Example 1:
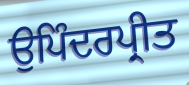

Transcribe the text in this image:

ਉਪਿੰਦਰਪ੍ਰੀਤ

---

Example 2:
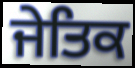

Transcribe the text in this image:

ਜੇਤਿਕ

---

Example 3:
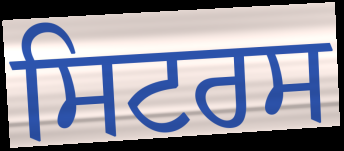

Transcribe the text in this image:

ਸਿਟਰਸ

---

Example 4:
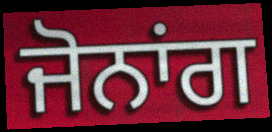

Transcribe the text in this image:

ਜੋਨਾਂਗ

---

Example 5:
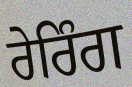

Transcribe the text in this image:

ਰੇਰਿੰਗ